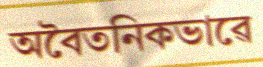
অবৈতনিকভাৱে